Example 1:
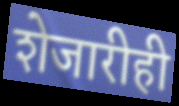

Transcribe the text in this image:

शेजारीही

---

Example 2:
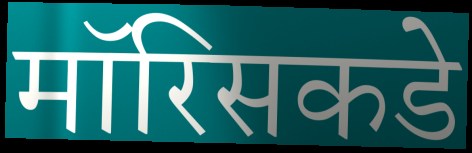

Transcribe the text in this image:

मॉरिसकडे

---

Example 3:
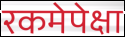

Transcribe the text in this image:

रकमेपेक्षा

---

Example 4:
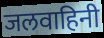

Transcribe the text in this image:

जलवाहिनी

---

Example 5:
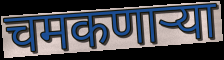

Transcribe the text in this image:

चमकणाऱ्या